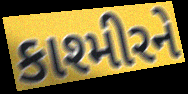
કાશ્મીરને